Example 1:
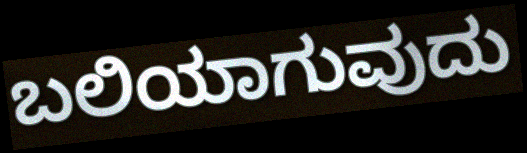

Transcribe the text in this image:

ಬಲಿಯಾಗುವುದು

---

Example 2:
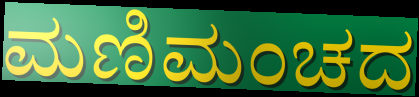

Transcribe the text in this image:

ಮಣಿಮಂಚದ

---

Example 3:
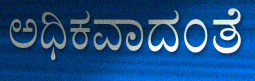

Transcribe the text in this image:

ಅಧಿಕವಾದಂತೆ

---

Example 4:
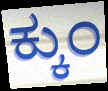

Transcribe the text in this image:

ಕ್ಕುಂ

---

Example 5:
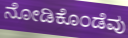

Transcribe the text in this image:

ನೋಡಿಕೊಂಡೆವು